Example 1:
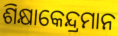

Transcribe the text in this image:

ଶିକ୍ଷାକେନ୍ଦ୍ରମାନ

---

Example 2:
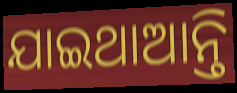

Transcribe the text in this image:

ଯାଇଥାଆନ୍ତି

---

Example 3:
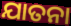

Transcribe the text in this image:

ଯାତନା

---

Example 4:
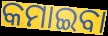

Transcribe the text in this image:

କମାଇବା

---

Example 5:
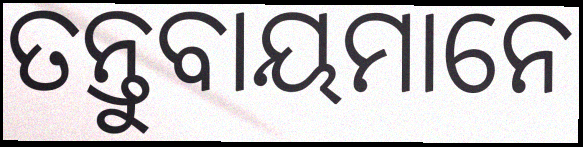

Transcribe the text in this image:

ତନ୍ତୁବାୟମାନେ